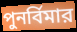
পুনর্বিমার